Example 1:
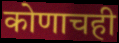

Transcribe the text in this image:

कोणाचही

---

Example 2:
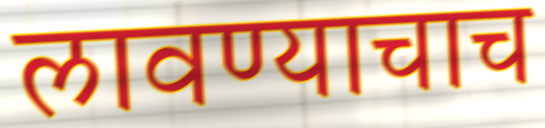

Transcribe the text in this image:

लावण्याचाच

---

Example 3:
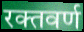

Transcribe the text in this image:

रक्तवर्ण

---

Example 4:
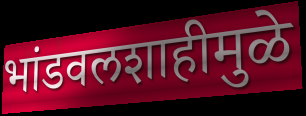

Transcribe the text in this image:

भांडवलशाहीमुळे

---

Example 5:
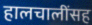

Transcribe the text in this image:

हालचालींसह